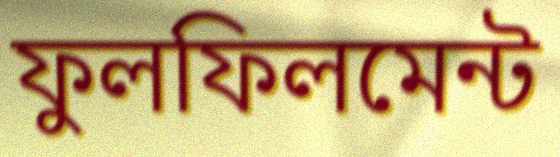
ফুলফিলমেন্ট